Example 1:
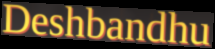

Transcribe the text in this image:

Deshbandhu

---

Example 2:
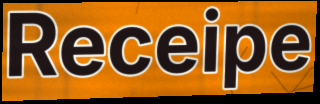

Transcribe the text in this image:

Receipe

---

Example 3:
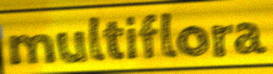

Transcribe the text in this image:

multiflora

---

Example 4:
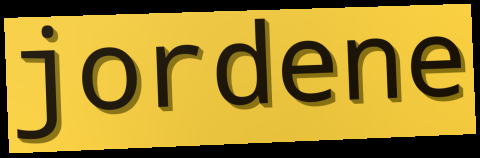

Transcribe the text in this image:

jordene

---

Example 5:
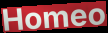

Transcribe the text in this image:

Homeo